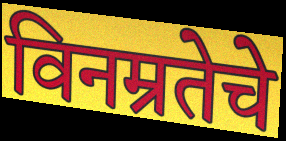
विनम्रतेचे